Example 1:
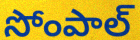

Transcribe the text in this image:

సోంపాల్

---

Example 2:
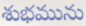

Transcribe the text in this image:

శుభమును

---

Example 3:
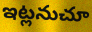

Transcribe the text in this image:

ఇట్లనుచూ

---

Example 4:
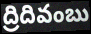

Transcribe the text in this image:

ద్రిదివంబు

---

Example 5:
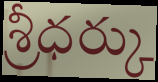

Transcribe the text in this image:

శ్రీధర్కు